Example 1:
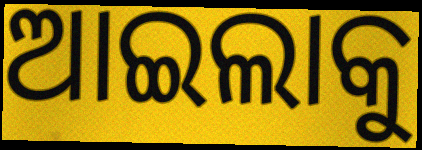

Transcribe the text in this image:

ଆଇଲାକୁ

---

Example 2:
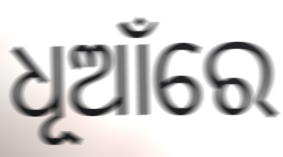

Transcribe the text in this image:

ଧୂଆଁରେ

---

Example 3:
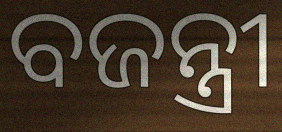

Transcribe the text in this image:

ବଜନ୍ତ୍ରୀ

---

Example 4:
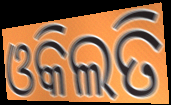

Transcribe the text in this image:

ଓକିଲତି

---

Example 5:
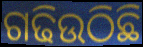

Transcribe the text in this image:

ଗଢିଉଠିଛି